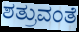
ಶತ್ರುವಂತೆ